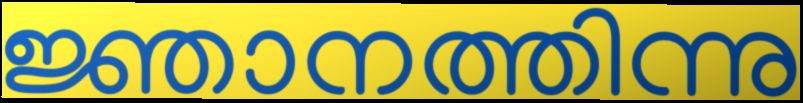
ജ്ഞാനത്തിന്നു